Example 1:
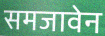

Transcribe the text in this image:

समजावेन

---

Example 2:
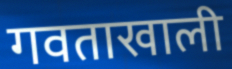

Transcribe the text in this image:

गवताखाली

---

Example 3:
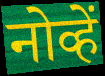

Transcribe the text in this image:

नोव्हें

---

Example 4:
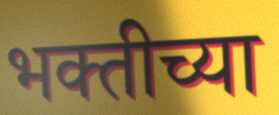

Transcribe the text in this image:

भक्तीच्या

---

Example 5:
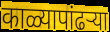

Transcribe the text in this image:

काळ्यापांढऱ्या